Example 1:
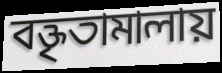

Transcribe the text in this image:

বক্তৃতামালায়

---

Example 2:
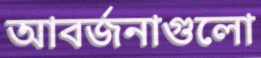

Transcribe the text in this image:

আবর্জনাগুলো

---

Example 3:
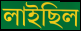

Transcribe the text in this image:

লাইছিল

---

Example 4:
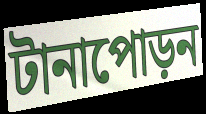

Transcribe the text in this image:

টানাপোড়ন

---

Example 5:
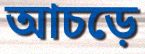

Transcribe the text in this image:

আচড়ে